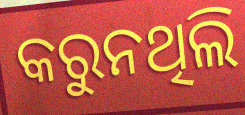
କରୁନଥିଲି